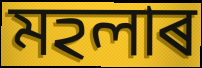
মহলাৰ